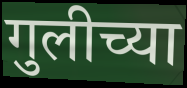
गुलीच्या